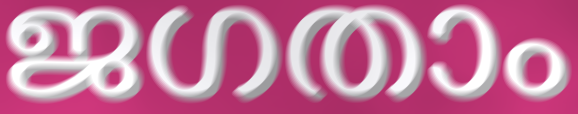
ജഗതാം